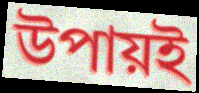
উপায়ই